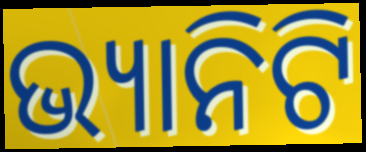
ଭ୍ୟାନିଟି